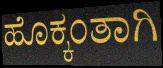
ಹೊಕ್ಕಂತಾಗಿ